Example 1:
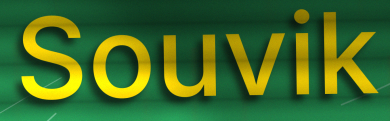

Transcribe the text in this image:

Souvik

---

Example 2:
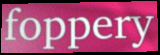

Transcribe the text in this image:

foppery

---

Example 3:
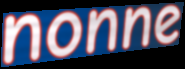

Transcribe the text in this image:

nonne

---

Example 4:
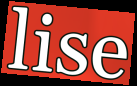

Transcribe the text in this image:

lise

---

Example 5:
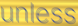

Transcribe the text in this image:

unless